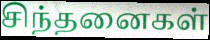
சிந்தனைகள்